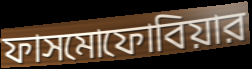
ফাসমোফোবিয়ার